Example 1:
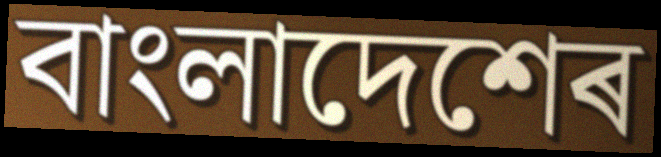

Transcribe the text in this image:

বাংলাদেশেৰ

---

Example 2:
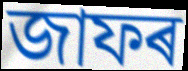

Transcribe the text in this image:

জাফৰ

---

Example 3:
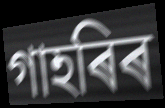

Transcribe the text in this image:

গাহৰিৰ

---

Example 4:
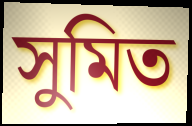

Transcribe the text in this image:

সুমিত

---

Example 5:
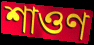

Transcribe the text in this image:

শাওণ